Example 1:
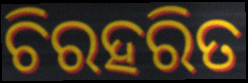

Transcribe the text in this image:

ଚିରହରିତ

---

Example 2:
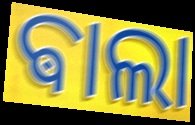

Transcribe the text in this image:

ଵାଲା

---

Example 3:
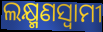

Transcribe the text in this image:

ଲକ୍ଷ୍ମଣସ୍ଵାମୀ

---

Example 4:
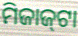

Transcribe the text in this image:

ମିଜାଜ୍‌ଟା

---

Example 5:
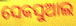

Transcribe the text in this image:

ସେକସୁଆଲ